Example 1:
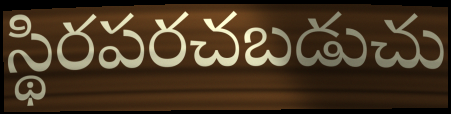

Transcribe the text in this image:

స్థిరపరచబడుచు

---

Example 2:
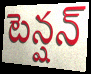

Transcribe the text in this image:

టెన్షన్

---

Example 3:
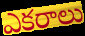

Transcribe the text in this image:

ఎకరాలు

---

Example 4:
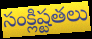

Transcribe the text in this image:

సంక్లిష్టతలు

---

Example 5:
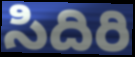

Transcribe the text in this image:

సిదిరి